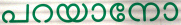
പറയാനോ